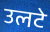
उलटे